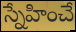
స్నేహించే